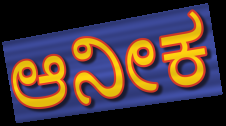
ಆನೀಕ